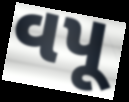
વપૂ